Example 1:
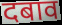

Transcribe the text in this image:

दबाव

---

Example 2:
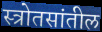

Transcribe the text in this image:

स्त्रोतसांतील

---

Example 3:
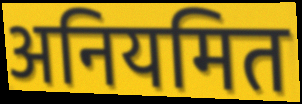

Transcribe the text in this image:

अनियमित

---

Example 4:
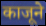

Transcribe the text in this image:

काजूने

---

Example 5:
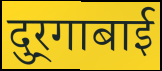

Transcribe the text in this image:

दुर्गाबाई